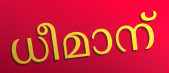
ധീമാന്